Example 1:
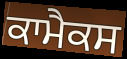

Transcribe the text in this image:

ਕਾਮੈਕਸ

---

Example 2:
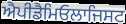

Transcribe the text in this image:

ਐਪੀਡੈਮਿਓਲਾਜਿਸਟ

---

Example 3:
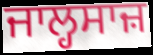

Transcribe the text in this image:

ਜਾਲ੍ਹਸਾਜ਼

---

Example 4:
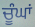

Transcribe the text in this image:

ਚੂੰਘਾਂ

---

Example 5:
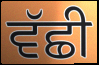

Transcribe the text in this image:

ਵੱਛੀ